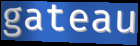
gateau